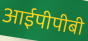
आईपीपीबी